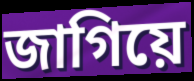
জাগিয়ে